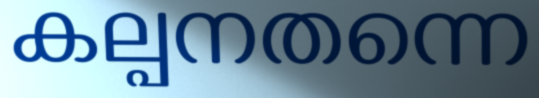
കല്പനതന്നെ